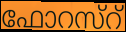
ഫോറസ്റ്